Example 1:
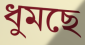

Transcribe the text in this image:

ধুমছে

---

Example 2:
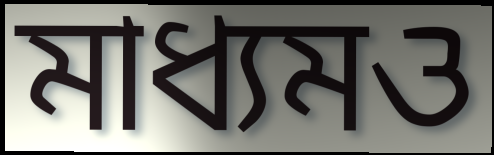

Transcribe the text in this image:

মাধ্যমও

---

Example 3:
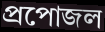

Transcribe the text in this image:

প্রপোজল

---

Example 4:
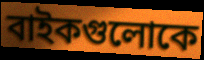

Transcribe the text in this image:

বাইকগুলোকে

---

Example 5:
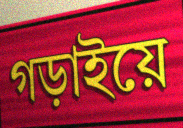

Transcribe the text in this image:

গড়াইয়ে